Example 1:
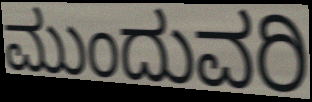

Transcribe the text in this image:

ಮುಂದುವರಿ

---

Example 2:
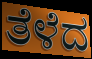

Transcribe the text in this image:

ತೆಳೆದ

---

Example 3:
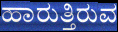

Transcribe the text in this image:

ಹಾರುತ್ತಿರುವ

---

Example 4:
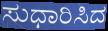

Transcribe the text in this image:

ಸುಧಾರಿಸಿದ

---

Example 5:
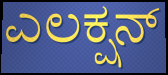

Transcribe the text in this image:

ಎಲಕ್ಷನ್